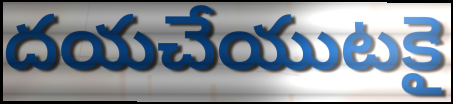
దయచేయుటకై